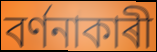
বৰ্ণনাকাৰী